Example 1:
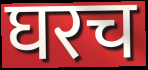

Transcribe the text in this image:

घरच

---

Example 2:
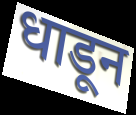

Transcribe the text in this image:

धाडून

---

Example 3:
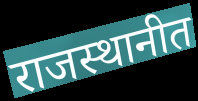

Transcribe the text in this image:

राजस्थानीत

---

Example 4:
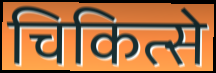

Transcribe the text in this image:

चिकित्से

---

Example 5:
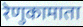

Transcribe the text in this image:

रेणुकामाता